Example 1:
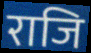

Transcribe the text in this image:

राजि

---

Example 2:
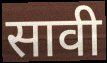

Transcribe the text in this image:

सावी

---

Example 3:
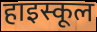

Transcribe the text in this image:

हाइस्कूल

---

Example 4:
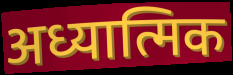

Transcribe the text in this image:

अध्यात्मिक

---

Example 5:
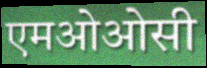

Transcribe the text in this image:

एमओओसी